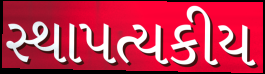
સ્થાપત્યકીય